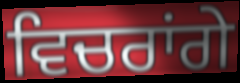
ਵਿਚਰਾਂਗੇ